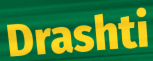
Drashti